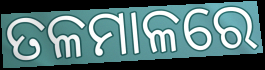
ତଳମାଳରେ